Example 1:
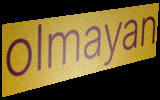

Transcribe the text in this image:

olmayan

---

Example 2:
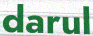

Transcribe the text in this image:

darul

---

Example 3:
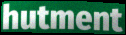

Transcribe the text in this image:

hutment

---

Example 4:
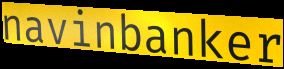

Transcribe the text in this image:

navinbanker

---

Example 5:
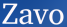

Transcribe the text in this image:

Zavo